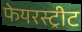
फेयरस्ट्रीट